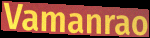
Vamanrao